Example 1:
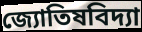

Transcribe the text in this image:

জ্যোতিষবিদ্যা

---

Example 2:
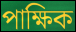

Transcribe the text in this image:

পাক্ষিক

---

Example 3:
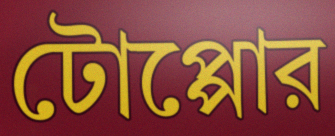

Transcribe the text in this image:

টোপ্পোর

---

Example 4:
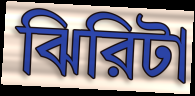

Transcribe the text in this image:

ঝিরিটা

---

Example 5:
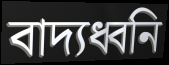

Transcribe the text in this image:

বাদ্যধ্বনি